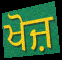
ਖੋਜ਼